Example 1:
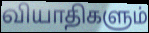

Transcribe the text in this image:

வியாதிகளும்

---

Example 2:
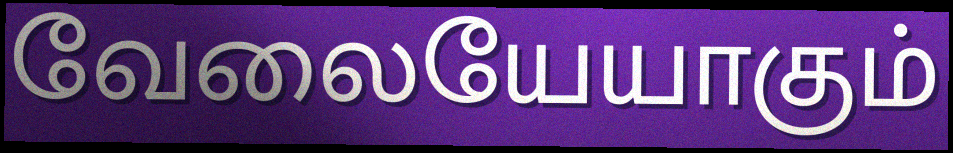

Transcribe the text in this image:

வேலையேயாகும்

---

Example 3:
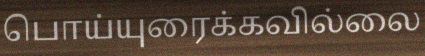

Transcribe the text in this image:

பொய்யுரைக்கவில்லை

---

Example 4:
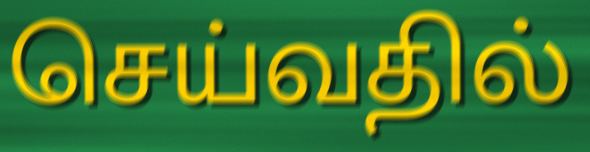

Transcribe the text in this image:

செய்வதில்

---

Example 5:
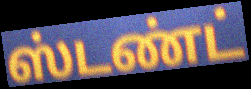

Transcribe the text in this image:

ஸ்டண்ட்